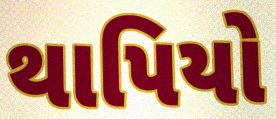
થાપિયો